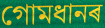
গোমধানৰ